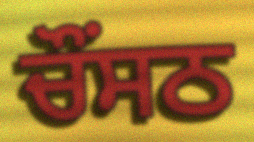
ਚੌਂਸਠ